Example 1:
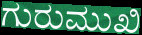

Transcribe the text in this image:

ಗುರುಮುಖಿ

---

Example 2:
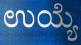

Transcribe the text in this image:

ಉಯ್ಯೆ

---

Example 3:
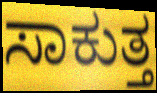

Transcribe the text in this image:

ಸಾಕುತ್ತ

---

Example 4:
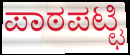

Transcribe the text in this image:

ಪಾಠಪಟ್ಟಿ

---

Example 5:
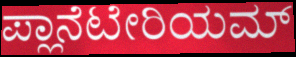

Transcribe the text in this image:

ಪ್ಲಾನೆಟೇರಿಯಮ್